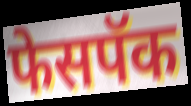
फेसपॅक